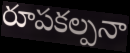
రూపకల్పనా